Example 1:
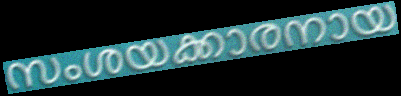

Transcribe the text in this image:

സംശയക്കാരനായ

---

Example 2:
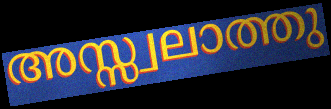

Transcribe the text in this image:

അസ്സ്വലാത്തു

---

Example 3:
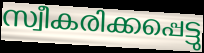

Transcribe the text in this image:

സ്വീകരിക്കപ്പെട്ടു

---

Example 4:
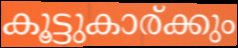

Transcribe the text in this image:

കൂട്ടുകാര്ക്കും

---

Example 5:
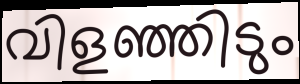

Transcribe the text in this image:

വിളഞ്ഞിടും